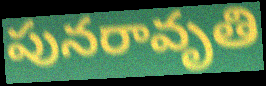
పునరావృతి